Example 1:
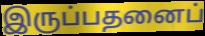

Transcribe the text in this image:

இருப்பதனைப்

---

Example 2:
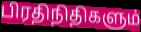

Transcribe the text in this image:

பிரதிநிதிகளும்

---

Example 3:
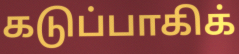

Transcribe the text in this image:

கடுப்பாகிக்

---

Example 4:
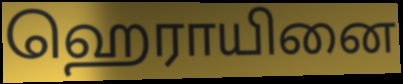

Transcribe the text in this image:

ஹெராயினை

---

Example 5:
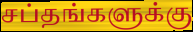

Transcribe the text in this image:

சப்தங்களுக்கு